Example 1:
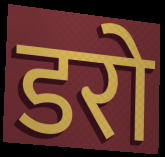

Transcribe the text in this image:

डरो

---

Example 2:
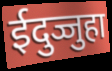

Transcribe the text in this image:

ईदुज्जुहा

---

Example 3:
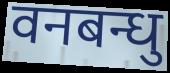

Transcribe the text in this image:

वनबन्धु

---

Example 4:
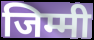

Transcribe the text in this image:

जिम्मी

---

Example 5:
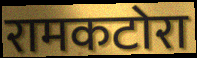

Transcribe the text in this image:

रामकटोरा